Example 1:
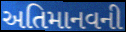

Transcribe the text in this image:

અતિમાનવની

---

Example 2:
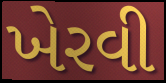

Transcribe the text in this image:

ખેરવી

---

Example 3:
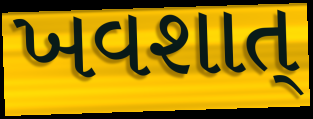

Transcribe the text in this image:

ખવશાત્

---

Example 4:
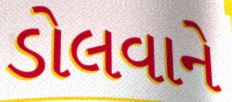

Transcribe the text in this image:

ડોલવાને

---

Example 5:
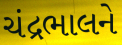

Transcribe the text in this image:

ચંદ્રભાલને